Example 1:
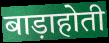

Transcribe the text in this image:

बाड़ाहोती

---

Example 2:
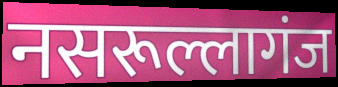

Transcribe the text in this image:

नसरूल्लागंज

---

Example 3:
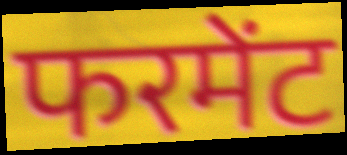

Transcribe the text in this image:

फरमेंट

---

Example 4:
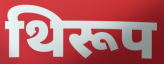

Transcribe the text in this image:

थिरूप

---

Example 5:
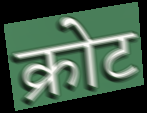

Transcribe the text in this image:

क्रोट